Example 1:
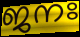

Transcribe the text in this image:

ജനഃ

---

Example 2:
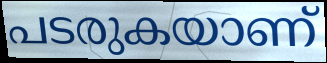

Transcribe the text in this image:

പടരുകയാണ്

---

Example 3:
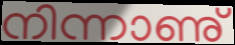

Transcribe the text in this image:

നിന്നാണു്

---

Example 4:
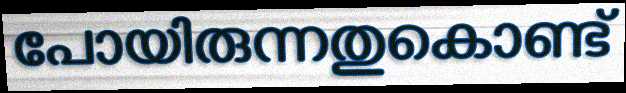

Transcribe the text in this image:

പോയിരുന്നതുകൊണ്ട്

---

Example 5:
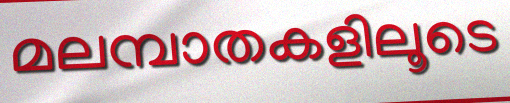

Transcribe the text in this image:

മലമ്പാതകളിലൂടെ